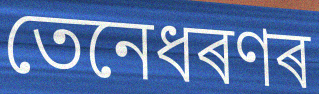
তেনেধৰণৰ